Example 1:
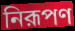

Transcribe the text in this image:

নিরূপণ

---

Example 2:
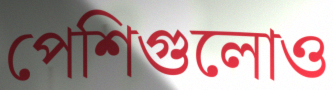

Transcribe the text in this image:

পেশিগুলোও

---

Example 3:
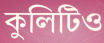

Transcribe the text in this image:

কুলিটিও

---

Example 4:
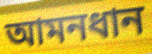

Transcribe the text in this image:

আমনধান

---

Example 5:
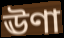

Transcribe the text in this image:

ঊণা